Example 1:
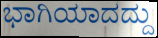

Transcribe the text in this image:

ಭಾಗಿಯಾದದ್ದು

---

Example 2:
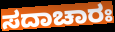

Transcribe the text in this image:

ಸದಾಚಾರಃ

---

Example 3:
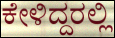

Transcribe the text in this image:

ಕೇಳಿದ್ದರಲ್ಲಿ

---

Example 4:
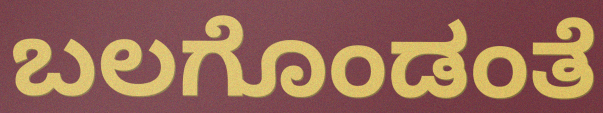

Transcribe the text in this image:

ಬಲಗೊಂಡಂತೆ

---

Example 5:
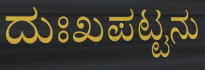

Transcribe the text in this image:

ದುಃಖಪಟ್ಟನು